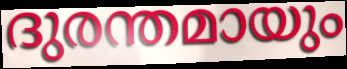
ദുരന്തമായും